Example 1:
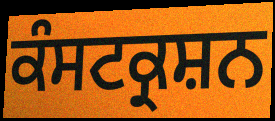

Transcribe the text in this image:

ਕੰਸਟਕ੍ਰਸ਼ਨ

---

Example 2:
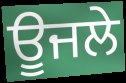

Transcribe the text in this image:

ਊਜਲੇ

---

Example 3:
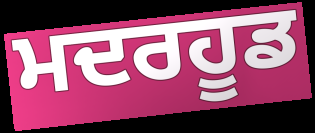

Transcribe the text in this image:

ਮਦਰਹੂਡ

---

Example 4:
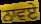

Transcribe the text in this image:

ਨਾਵਏ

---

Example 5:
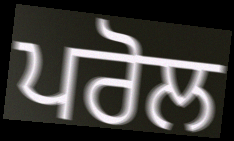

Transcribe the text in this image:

ਪਰੋਲ